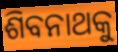
ଶିବନାଥକୁ